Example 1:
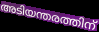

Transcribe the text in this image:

അടിയന്തരത്തിന്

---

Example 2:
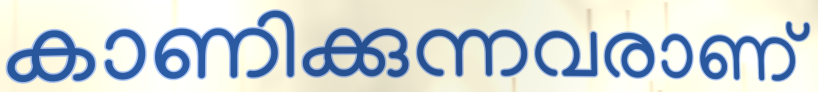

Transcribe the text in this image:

കാണിക്കുന്നവരാണ്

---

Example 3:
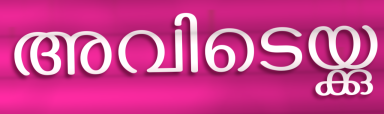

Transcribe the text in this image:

അവിടെയ്ക്കു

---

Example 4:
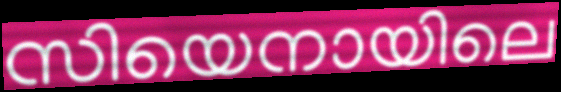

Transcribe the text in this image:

സിയെനായിലെ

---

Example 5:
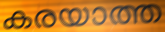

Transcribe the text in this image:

കരയാത്ത